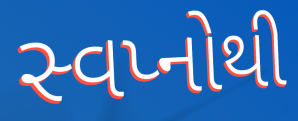
સ્વપ્નોથી